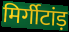
मिर्गीटांड़